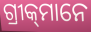
ଗ୍ରୀକ୍‍ମାନେ